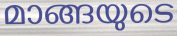
മാങ്ങയുടെ